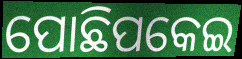
ପୋଛିପକେଇ